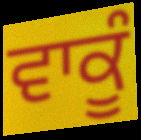
ਵਾਕੂੰ